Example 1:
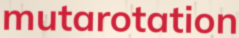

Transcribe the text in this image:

mutarotation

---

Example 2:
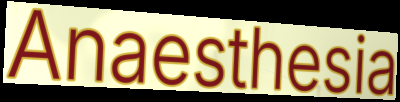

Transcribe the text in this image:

Anaesthesia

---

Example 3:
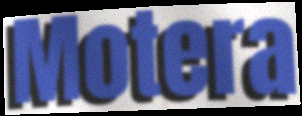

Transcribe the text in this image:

Motera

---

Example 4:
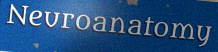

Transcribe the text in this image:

Neuroanatomy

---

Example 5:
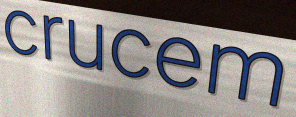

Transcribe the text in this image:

crucem